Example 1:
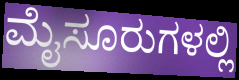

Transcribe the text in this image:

ಮೈಸೂರುಗಳಲ್ಲಿ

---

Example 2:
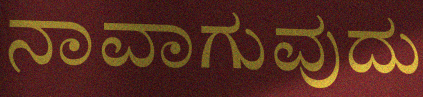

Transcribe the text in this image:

ನಾವಾಗುವುದು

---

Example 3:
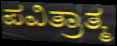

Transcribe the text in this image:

ಪವಿತ್ರಾತ್ಮ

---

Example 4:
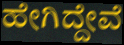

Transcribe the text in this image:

ಹೇಗಿದ್ದೇವೆ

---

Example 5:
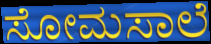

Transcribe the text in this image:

ಸೋಮಸಾಲೆ